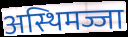
अस्थिमज्जा